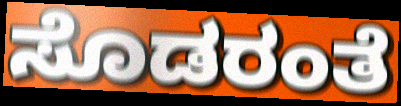
ಸೊಡರಂತೆ